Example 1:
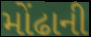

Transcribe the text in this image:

મોંઢાની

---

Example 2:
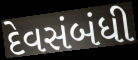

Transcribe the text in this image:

દેવસંબંધી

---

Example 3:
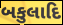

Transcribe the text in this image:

બકુલાદિ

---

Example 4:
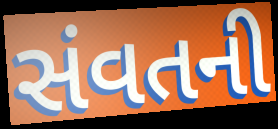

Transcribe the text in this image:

સંવતની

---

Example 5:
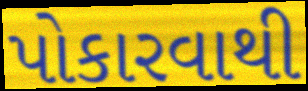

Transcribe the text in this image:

પોકારવાથી